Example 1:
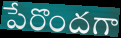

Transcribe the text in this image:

పేరొందగా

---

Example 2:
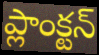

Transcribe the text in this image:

ప్లాంక్టన్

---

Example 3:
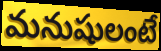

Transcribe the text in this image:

మనుషులంటే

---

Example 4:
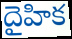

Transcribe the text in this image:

దైహిక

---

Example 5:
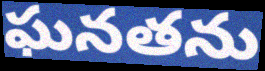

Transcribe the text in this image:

ఘనతను